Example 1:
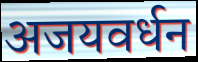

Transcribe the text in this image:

अजयवर्धन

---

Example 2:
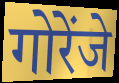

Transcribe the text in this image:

गोरेंजे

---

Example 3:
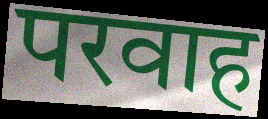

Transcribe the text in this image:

परवाह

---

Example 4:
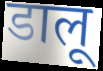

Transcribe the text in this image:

डालू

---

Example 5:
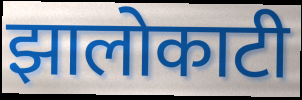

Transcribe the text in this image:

झालोकाटी